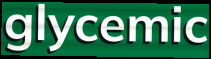
glycemic